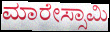
ಮಾರೇಸ್ಸಾಮಿ